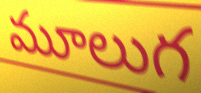
మూలుగ